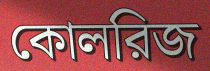
কোলরিজ